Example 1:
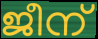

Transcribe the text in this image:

ജീന്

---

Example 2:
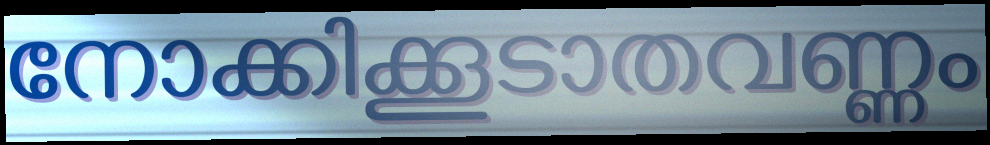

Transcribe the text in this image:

നോക്കിക്കൂടാതവണ്ണം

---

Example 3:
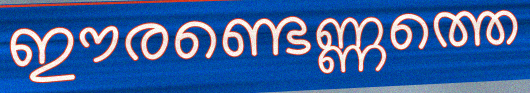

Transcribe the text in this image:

ഈരണ്ടെണ്ണത്തെ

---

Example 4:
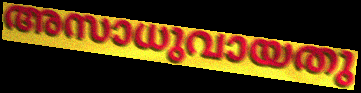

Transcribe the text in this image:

അസാധുവായതു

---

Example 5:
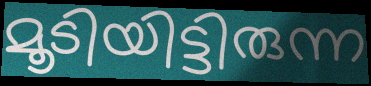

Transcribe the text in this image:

മൂടിയിട്ടിരുന്ന